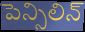
పెన్సిలిన్